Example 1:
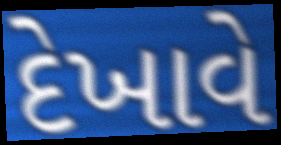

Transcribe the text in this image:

દેખાવે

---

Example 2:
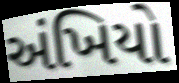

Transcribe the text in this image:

અંખિયો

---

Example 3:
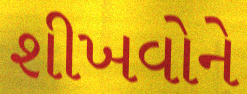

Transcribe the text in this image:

શીખવોને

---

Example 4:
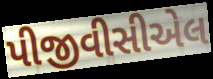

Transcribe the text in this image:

પીજીવીસીએલ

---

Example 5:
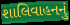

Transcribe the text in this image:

શાલિવાહનનું